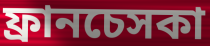
ফ্রানচেসকা